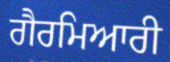
ਗੈਰਮਿਆਰੀ